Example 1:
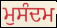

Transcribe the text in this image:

ਮੁਸੰਦਮ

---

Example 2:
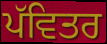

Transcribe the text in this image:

ਪੱਵਿਤਰ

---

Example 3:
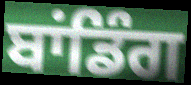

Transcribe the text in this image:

ਬਾਂਡਿੰਗ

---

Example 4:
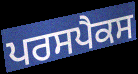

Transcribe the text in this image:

ਪਰਸਪੈਕਸ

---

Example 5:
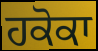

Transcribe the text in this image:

ਹਕੋਕਾ